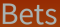
Bets